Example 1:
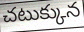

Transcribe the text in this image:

చటుక్కున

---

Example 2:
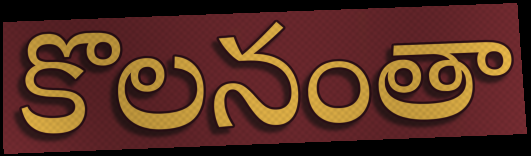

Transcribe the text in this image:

కొలనంతా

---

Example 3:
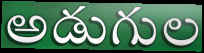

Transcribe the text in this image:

అడుగుల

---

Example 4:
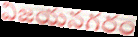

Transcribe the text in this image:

విజయనగరం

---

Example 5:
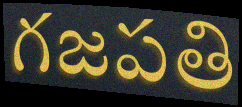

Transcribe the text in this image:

గజపతి